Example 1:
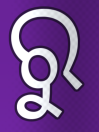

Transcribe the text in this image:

ରୁ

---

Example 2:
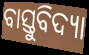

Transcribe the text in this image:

ବାସ୍ତୁବିଦ୍ୟା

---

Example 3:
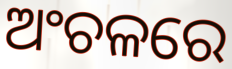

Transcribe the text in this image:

ଅଂଚଳରେ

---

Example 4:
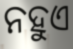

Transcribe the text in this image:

ନହୁଏ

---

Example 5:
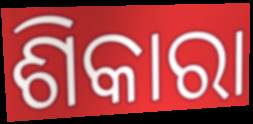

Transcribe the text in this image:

ଶିକାରା